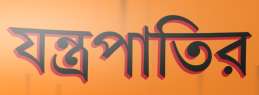
যন্ত্রপাতির